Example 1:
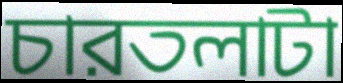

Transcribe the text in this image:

চারতলাটা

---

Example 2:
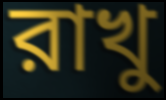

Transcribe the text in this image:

রাখু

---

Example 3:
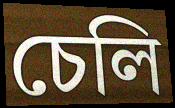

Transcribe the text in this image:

চেলি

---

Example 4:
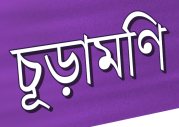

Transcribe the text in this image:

চূড়ামণি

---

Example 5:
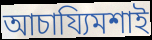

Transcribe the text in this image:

আচায্যিমশাই